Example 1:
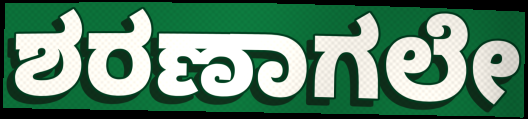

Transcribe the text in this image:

ಶರಣಾಗಲೇ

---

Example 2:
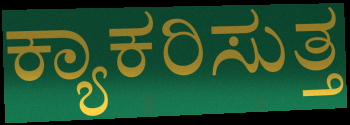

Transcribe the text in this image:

ಕ್ಯಾಕರಿಸುತ್ತ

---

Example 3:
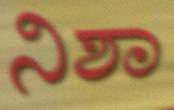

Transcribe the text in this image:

ನಿಶಾ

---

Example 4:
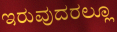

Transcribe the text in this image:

ಇರುವುದರಲ್ಲೂ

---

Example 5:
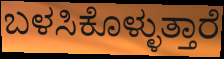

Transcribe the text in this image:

ಬಳಸಿಕೊಳ್ಳುತ್ತಾರೆ